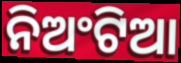
ନିଅଂଟିଆ